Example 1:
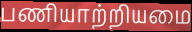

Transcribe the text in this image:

பணியாற்றியமை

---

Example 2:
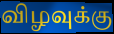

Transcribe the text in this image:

விழவுக்கு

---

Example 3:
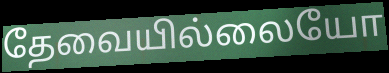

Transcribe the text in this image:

தேவையில்லையோ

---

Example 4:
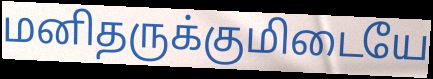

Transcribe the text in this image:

மனிதருக்குமிடையே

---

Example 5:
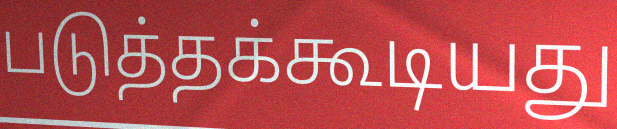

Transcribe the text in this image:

படுத்தக்கூடியது